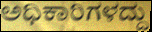
ಅಧಿಕಾರಿಗಳದ್ದು